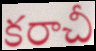
కరాచీ